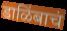
डाळिंबाचं